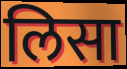
लिसा